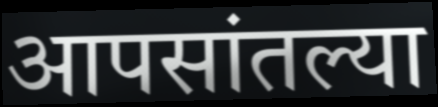
आपसांतल्या